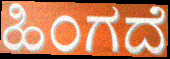
ಹಿಂಗದೆ